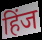
हिंज